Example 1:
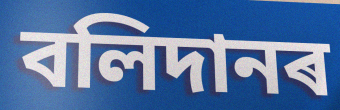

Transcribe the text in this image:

বলিদানৰ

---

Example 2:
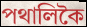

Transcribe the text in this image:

পথালিকৈ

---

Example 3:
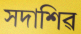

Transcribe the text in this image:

সদাশিৱ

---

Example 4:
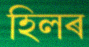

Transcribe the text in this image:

হিলৰ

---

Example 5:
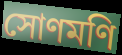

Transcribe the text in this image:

সোণমণি